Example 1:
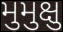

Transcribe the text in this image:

મુમુક્ષુ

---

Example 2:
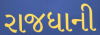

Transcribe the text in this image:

રાજધાની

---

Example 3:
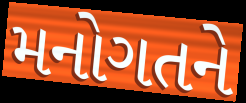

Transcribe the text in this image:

મનોગતને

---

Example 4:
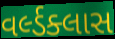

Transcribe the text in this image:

વર્લ્ડક્લાસ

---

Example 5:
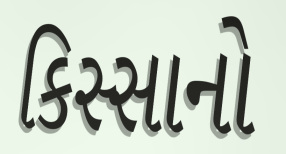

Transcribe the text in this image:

કિસ્સાનો